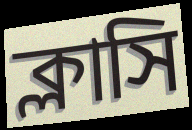
ক্লাসি